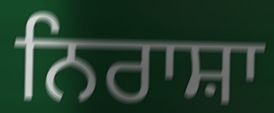
ਨਿਰਾਸ਼ਾ